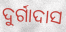
ଦୁର୍ଗାଦାସ